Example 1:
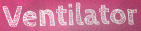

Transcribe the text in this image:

Ventilator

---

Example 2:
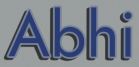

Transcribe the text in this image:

Abhi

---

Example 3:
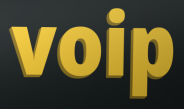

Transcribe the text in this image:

voip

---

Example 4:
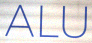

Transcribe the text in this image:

ALU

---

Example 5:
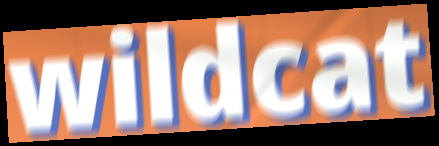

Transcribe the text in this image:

wildcat